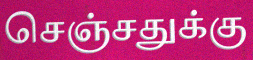
செஞ்சதுக்கு